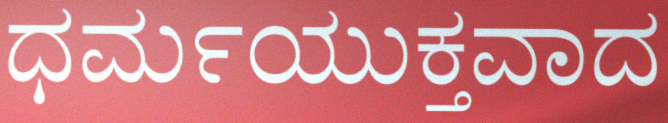
ಧರ್ಮಯುಕ್ತವಾದ